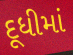
દૂધીમાં